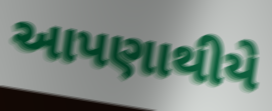
આપણાથીયે